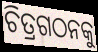
ଚିତ୍ରଗଠନକୁ